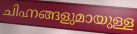
ചിഹ്നങ്ങളുമായുള്ള